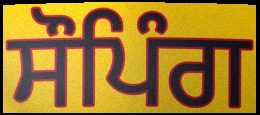
ਸੌਪਿੰਗ